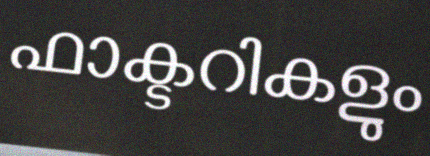
ഫാക്ടറികളും